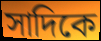
সাদিকে